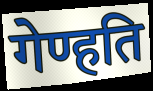
गेण्हति